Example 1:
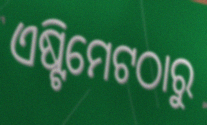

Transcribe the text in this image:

ଏଷ୍ଟିମେଟଠାରୁ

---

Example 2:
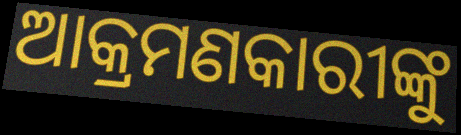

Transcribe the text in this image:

ଆକ୍ରମଣକାରୀଙ୍କୁ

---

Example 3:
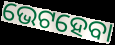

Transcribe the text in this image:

ଭେଟହେବା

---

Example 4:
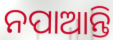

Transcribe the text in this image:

ନପାଆନ୍ତି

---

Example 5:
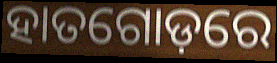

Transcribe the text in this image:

ହାତଗୋଡ଼ରେ